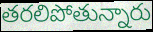
తరలిపోతున్నారు